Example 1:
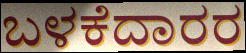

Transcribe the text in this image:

ಬಳಕೆದಾರರ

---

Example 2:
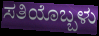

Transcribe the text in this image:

ಸತಿಯೊಬ್ಬಳು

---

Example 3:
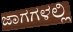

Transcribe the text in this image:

ಜಾಗಗಳಲ್ಲಿ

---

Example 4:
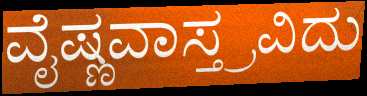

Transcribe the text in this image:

ವೈಷ್ಣವಾಸ್ತ್ರವಿದು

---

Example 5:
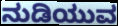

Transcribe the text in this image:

ನುಡಿಯುವ